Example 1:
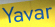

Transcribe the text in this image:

Yavar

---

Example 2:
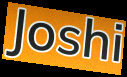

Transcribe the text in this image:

Joshi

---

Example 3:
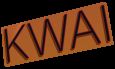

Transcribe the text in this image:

KWAI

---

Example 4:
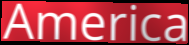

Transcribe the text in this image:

America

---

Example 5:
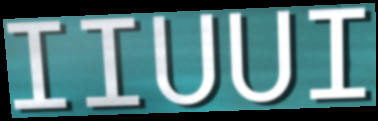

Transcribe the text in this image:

IIUUI